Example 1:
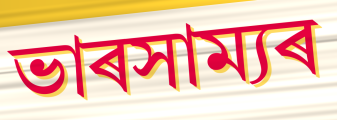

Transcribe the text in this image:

ভাৰসাম্যৰ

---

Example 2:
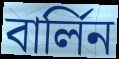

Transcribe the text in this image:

বাৰ্লিন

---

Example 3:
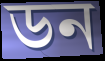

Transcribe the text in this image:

ডন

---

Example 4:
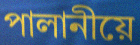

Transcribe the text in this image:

পালানীয়ে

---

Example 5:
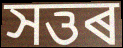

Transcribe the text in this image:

সত্তৰ